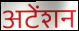
अटेंशन